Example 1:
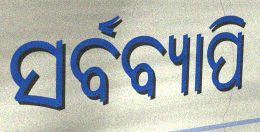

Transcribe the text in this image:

ସର୍ବବ୍ୟାପି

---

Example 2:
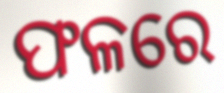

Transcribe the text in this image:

ଫଳରେ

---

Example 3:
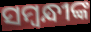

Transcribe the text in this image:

ସମ୍ବନ୍ଧୀଙ୍କ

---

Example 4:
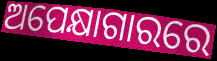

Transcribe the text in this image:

ଅପେକ୍ଷାଗାରରେ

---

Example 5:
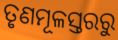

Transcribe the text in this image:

ତୃଣମୂଳସ୍ତରରୁ